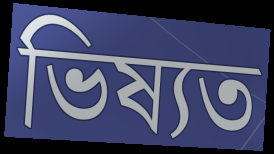
ভিষ্যত